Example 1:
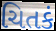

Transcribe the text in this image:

ચિતકં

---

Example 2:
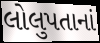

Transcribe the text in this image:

લોલુપતાનાં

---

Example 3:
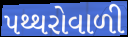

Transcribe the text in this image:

પથ્થરોવાળી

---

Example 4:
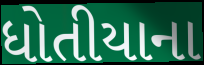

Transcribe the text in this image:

ધોતીયાના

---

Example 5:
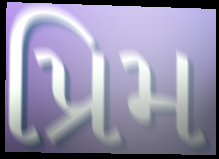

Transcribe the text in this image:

પ્રિમ